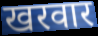
खरवार